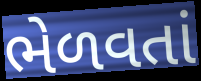
ભેળવતાં